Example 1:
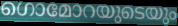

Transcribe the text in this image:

ഗൊമോറയുടെയും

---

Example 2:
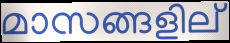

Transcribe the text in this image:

മാസങ്ങളില്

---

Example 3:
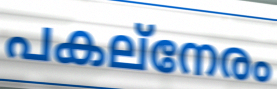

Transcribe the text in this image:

പകല്നേരം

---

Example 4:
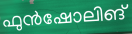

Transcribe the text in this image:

ഫുൻഷോലിങ്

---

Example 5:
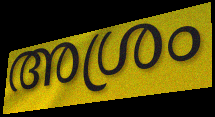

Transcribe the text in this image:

അശ്രം